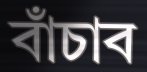
বাঁচাব